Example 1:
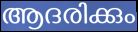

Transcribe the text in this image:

ആദരിക്കും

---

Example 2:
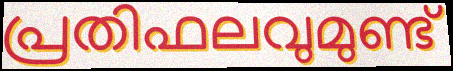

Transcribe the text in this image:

പ്രതിഫലവുമുണ്ട്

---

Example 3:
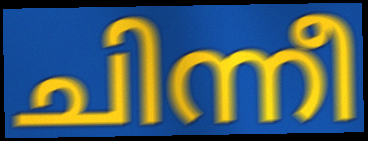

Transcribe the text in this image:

ചിന്നീ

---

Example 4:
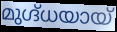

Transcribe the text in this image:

മുഗ്ദ്ധയായ്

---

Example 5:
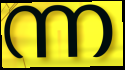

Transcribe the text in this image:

ന്ന